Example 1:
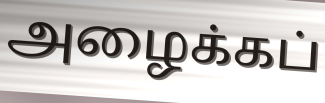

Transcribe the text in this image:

அழைக்கப்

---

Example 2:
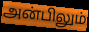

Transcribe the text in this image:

அன்பிலும்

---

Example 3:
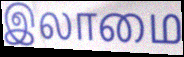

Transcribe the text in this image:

இலாமை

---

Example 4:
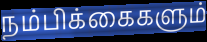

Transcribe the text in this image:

நம்பிக்கைகளும்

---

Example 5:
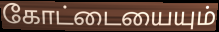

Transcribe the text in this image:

கோட்டையையும்